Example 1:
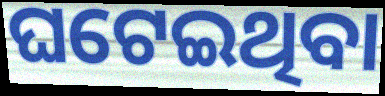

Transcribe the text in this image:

ଘଟେଇଥିବା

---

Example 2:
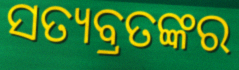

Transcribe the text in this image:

ସତ୍ୟବ୍ରତଙ୍କର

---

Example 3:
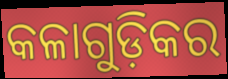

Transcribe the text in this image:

କଳାଗୁଡ଼ିକର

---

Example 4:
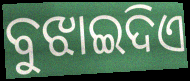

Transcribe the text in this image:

ବୁଝାଇଦିଏ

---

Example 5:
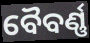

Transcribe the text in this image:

ବୈବର୍ଣ୍ଣ